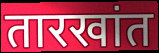
तारखांत